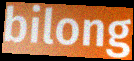
bilong